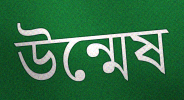
উন্মেষ